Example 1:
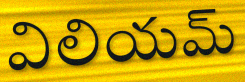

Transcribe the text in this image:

విలియమ్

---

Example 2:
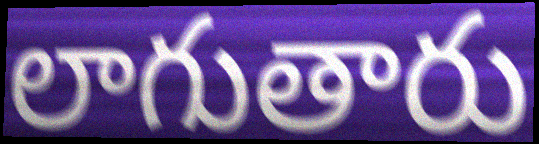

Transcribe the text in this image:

లాగుతారు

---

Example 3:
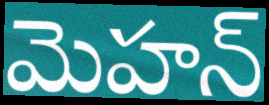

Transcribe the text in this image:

మెహన్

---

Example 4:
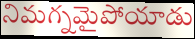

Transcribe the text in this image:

నిమగ్నమైపోయాడు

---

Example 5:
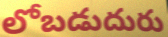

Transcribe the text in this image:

లోబడుదురు